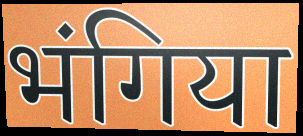
भंगिया